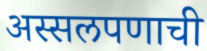
अस्सलपणाची